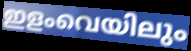
ഇളംവെയിലും